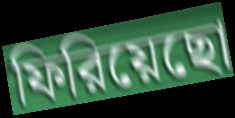
ফিরিয়েছো